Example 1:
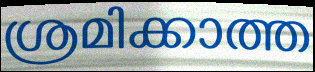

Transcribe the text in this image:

ശ്രമിക്കാത്ത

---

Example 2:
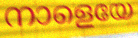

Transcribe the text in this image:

നാളെയേ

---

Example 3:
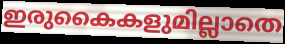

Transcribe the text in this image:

ഇരുകൈകളുമില്ലാതെ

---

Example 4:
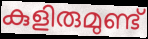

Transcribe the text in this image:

കുളിരുമുണ്ട്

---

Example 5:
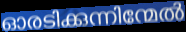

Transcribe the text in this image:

ഓരടിക്കുന്നിന്മേൽ